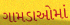
ગામડાઓમાં